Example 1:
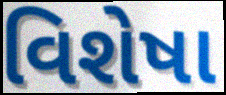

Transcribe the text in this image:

વિશેષા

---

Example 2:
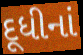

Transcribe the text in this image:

દૂધીનાં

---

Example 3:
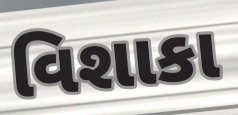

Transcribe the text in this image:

વિશાકા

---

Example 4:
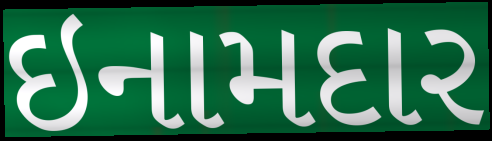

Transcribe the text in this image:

ઇનામદાર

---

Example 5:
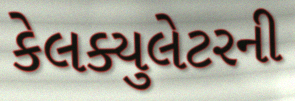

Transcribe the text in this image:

કેલક્યુલેટરની